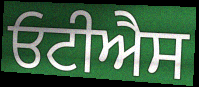
ਓਟੀਐਸ